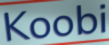
Koobi